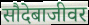
सौदेबाजीवर